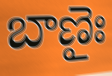
బాణైః